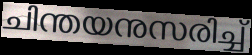
ചിന്തയനുസരിച്ച്